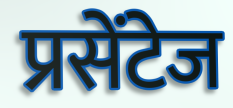
प्रसेंटेज